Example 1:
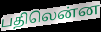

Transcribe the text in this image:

பதிலென்ன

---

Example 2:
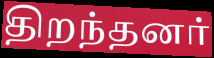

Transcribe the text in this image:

திறந்தனர்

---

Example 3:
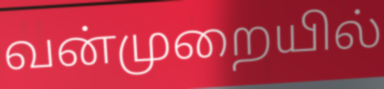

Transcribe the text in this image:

வன்முறையில்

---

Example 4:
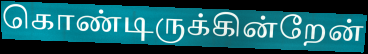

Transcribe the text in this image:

கொண்டிருக்கின்றேன்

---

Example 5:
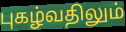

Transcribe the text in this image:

புகழ்வதிலும்